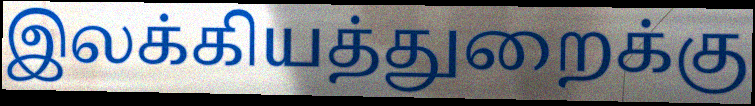
இலக்கியத்துறைக்கு